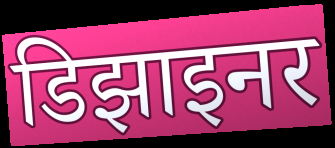
डिझाइनर